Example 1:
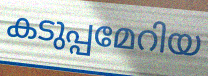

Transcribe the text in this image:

കടുപ്പമേറിയ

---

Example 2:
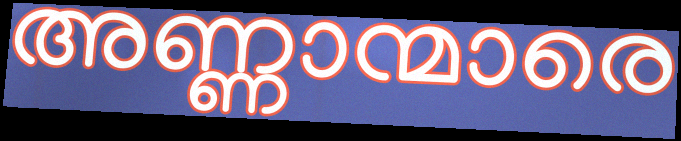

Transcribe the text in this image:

അണ്ണാന്മാരെ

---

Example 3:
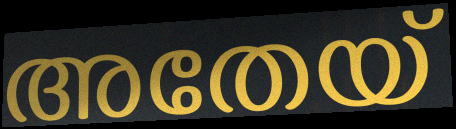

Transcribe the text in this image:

അതേയ്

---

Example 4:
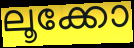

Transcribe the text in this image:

ലൂക്കോ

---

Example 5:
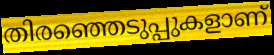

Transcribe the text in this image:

തിരഞ്ഞെടുപ്പുകളാണ്